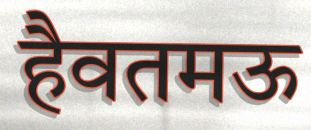
हैवतमऊ